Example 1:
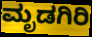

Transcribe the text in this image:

ಮೃಡಗಿರಿ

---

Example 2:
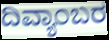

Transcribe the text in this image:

ದಿವ್ಯಾಂಬರ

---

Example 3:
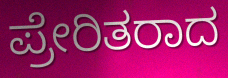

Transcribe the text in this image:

ಪ್ರೇರಿತರಾದ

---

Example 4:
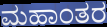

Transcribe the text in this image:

ಮಹಾಂತರ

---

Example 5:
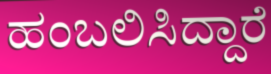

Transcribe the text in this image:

ಹಂಬಲಿಸಿದ್ದಾರೆ